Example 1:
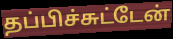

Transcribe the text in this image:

தப்பிச்சுட்டேன்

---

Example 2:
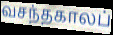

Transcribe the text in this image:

வசந்தகாலப்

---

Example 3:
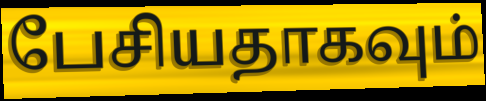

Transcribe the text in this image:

பேசியதாகவும்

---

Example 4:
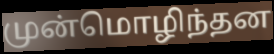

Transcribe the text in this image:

முன்மொழிந்தன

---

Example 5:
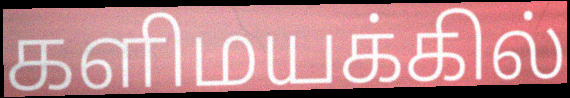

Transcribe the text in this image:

களிமயக்கில்